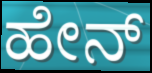
ಹೇನ್